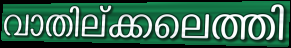
വാതില്ക്കലെത്തി